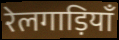
रेलगाड़ियाँ